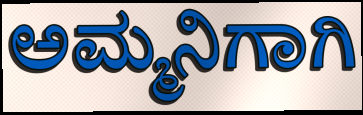
ಅಮ್ಮನಿಗಾಗಿ